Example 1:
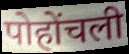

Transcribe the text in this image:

पोहोंचली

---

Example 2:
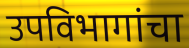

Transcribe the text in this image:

उपविभागांचा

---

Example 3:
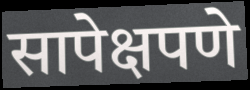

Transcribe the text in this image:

सापेक्षपणे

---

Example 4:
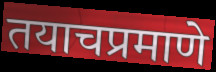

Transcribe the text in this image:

तयाचप्रमाणे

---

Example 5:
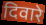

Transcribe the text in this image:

दिवारे